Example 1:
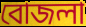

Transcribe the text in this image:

বোজলা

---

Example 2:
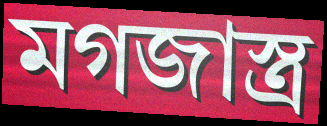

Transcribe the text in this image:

মগজাস্ত্র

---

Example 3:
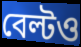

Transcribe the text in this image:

বেল্টও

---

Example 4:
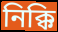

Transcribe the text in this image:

নিক্কি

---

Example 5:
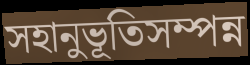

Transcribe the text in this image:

সহানুভূতিসম্পন্ন